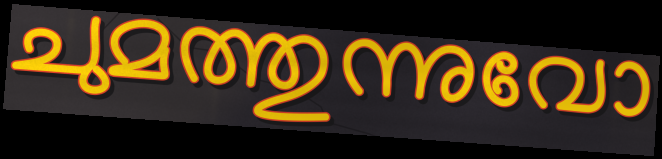
ചുമത്തുന്നുവോ